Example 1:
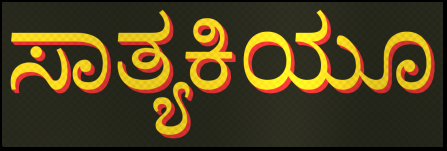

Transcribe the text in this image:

ಸಾತ್ಯಕಿಯೂ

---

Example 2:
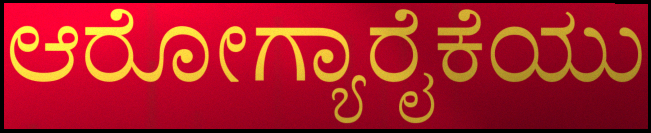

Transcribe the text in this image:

ಆರೋಗ್ಯಾರೈಕೆಯು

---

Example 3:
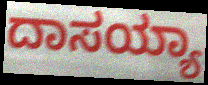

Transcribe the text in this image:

ದಾಸಯ್ಯಾ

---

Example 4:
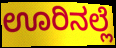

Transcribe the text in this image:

ಊರಿನಲ್ಲೆ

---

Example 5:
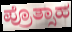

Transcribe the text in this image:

ಪ್ರೊತ್ಸಾಹ